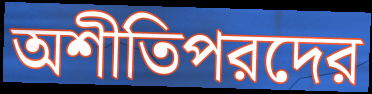
অশীতিপরদের